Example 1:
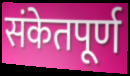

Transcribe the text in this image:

संकेतपूर्ण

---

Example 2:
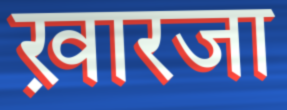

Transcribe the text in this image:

ख़ारजा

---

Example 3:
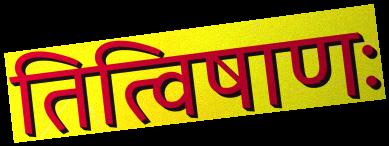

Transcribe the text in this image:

तित्विषाणः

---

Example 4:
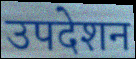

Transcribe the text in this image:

उपदेशन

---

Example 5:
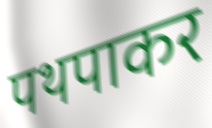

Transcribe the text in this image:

पथपाकर